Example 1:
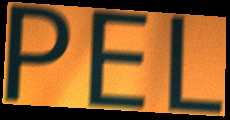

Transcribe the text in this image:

PEL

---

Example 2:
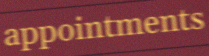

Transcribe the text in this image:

appointments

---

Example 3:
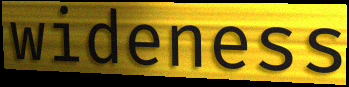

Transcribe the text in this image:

wideness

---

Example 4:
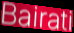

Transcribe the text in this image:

Bairati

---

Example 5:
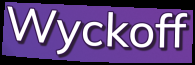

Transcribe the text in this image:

Wyckoff